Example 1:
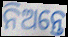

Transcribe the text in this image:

ନିଅନ୍ତେ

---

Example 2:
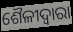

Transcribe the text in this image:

ଶୈଳୀଦ୍ୱାରା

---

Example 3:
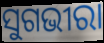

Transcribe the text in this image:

ସୁଗଭୀରା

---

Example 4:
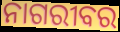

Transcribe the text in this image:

ନାଗରୀବର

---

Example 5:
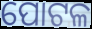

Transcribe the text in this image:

ପୋଟଳ